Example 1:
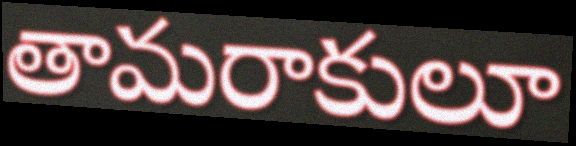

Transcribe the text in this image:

తామరాకులూ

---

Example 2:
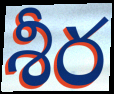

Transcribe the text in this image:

శీర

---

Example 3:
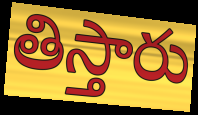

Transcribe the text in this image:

తిస్తారు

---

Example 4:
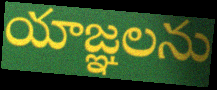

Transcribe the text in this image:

యాజ్ఞలను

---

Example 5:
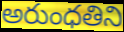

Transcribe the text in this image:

అరుంధతిని